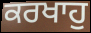
ਕਰਖਾਹੁ